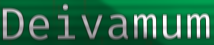
Deivamum